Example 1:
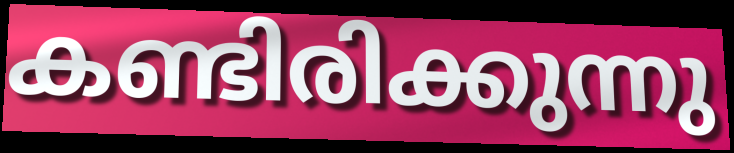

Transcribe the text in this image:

കണ്ടിരിക്കുന്നു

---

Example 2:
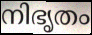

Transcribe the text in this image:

നിഭൃതം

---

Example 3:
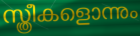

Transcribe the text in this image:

സ്ത്രീകളൊന്നും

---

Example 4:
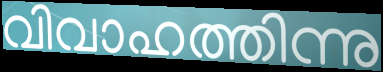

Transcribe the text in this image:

വിവാഹത്തിന്നു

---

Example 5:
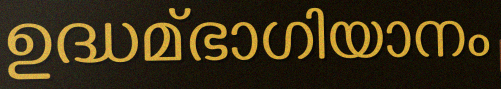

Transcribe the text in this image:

ഉദ്ധമ്ഭാഗിയാനം